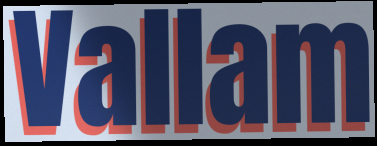
Vallam